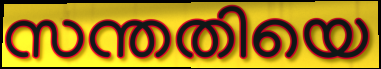
സന്തതിയെ